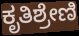
ಕೃತಿಶ್ರೇಣಿ